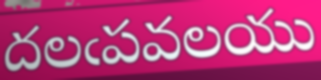
దలఁపవలయు